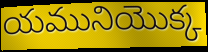
యమునియొక్క